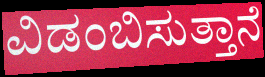
ವಿಡಂಬಿಸುತ್ತಾನೆ